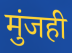
मुंजही